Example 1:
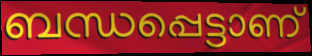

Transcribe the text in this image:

ബന്ധപ്പെട്ടാണ്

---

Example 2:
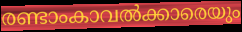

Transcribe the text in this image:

രണ്ടാംകാവൽക്കാരെയും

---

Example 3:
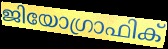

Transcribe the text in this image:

ജിയോഗ്രാഫിക്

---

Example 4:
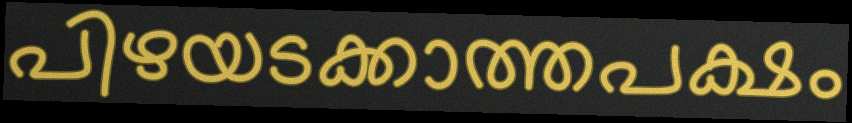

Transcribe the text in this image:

പിഴയടക്കാത്തപക്ഷം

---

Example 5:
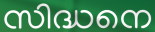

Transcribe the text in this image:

സിദ്ധനെ